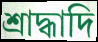
শ্রাদ্ধাদি